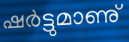
ഷർട്ടുമാണു്